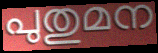
പുതുമന